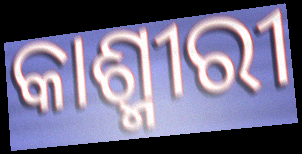
କାଶ୍ମୀରୀ